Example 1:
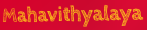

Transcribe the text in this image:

Mahavithyalaya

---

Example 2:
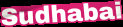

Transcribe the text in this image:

Sudhabai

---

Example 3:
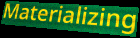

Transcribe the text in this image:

Materializing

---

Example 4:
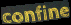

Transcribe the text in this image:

confine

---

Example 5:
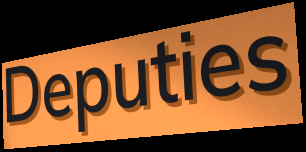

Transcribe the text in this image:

Deputies